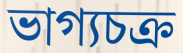
ভাগ্যচক্র